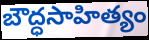
బౌద్ధసాహిత్యం